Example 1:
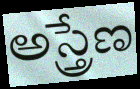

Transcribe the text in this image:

అస్త్రేణ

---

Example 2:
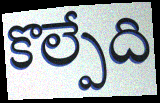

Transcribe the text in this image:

కొల్పేది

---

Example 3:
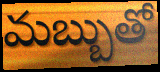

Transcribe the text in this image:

మబ్బుతో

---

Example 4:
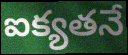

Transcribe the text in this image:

ఐక్యతనే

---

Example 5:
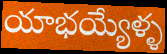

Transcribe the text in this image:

యాభయ్యేళ్ళ